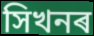
সিখনৰ